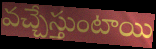
వచ్చేస్తుంటాయి